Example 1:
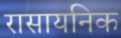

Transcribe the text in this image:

रासायनिक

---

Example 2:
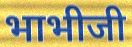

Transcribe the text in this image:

भाभीजी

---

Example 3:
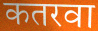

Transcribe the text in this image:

कतरवा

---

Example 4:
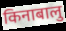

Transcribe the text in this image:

किनाबालु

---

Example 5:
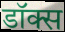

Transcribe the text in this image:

डॉक्स